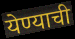
येण्याची